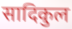
सादिकुल